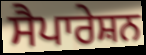
ਸੈਪਾਰੇਸ਼ਨ